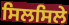
ਸਿਲਸਿਲੇ